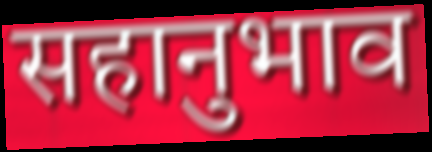
सहानुभाव